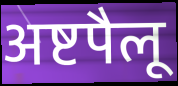
अष्टपैलू